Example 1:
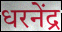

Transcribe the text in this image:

धरनेंद्र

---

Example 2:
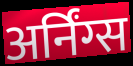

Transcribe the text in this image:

अर्निंग्स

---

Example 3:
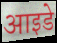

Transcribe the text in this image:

आइडे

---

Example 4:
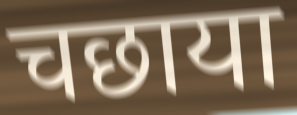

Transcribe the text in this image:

चछाया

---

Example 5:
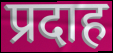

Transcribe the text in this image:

प्रदाह